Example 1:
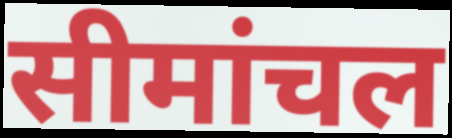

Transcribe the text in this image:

सीमांचल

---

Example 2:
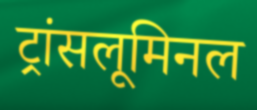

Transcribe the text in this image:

ट्रांसलूमिनल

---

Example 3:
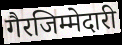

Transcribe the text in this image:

गैरजिम्मेदारी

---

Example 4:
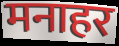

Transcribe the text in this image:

मनाहर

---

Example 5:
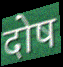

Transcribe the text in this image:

दोष